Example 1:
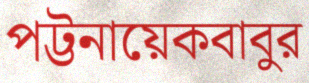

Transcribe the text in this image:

পট্টনায়েকবাবুর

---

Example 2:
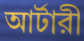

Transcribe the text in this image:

আর্টারী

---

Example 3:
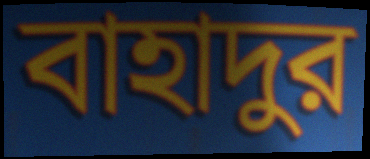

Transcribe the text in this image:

বাহাদুর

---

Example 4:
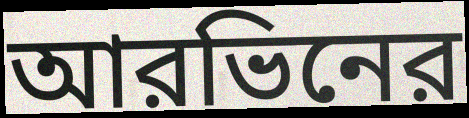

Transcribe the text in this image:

আরভিনের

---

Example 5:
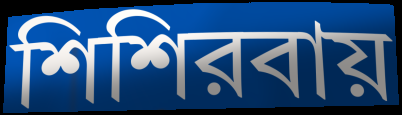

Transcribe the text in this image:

শিশিরবায়